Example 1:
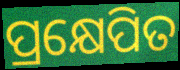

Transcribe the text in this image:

ପ୍ରକ୍ଷେପିତ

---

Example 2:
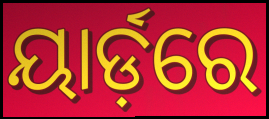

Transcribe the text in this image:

ୟାର୍ଡ଼ରେ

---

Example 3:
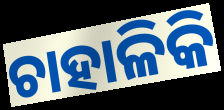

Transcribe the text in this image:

ଚାହାଳିକି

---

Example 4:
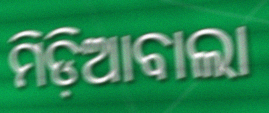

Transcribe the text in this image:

ମିଡ଼ିଆବାଲା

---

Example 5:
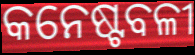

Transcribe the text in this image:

କନେଷ୍ଟବଳୀ